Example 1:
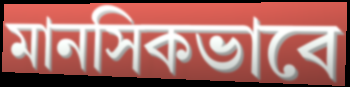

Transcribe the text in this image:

মানসিকভাবে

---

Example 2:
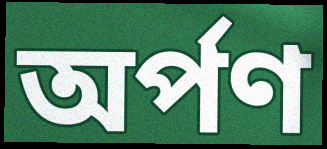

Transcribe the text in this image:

অর্পণ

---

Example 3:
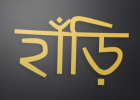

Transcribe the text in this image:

হাঁড়ি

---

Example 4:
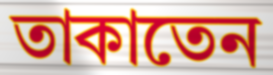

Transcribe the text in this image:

তাকাতেন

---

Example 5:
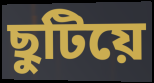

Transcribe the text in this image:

ছুটিয়ে